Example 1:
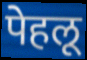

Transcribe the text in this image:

पेहलू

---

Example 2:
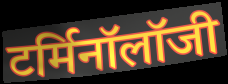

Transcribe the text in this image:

टर्मिनॉलॉजी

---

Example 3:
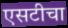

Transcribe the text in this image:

एसटीचा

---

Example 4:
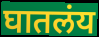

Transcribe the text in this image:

घातलंय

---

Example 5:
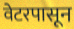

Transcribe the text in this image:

वेटरपासून